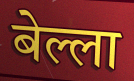
बेल्ला